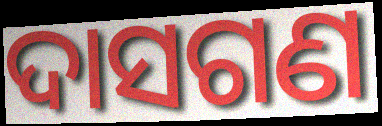
ଦାସଗଣ